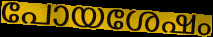
പോയശേഷം